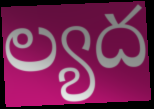
ల్యద